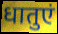
धातुएं